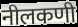
नीलकणी